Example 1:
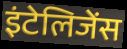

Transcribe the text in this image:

इंटेलिजेंस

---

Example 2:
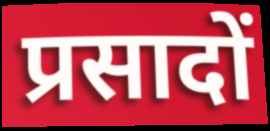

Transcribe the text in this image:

प्रसादों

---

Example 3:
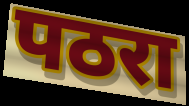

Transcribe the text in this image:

पठरा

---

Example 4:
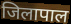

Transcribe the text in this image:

जिलापाल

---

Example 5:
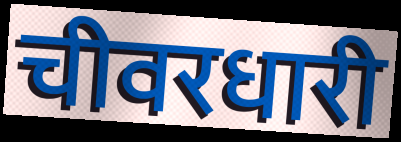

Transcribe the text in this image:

चीवरधारी